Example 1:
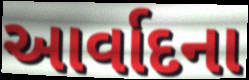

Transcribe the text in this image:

આર્વાદના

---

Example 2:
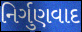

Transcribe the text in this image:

નિર્ગુણવાદ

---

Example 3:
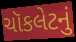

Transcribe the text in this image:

ચૉકલેટનું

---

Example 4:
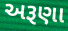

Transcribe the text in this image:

અરૂણા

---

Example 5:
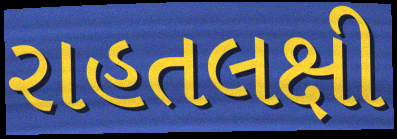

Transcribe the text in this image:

રાહતલક્ષી